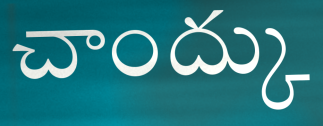
చాంద్కు